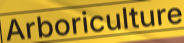
Arboriculture